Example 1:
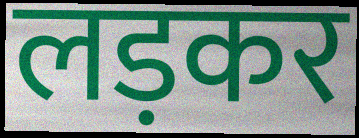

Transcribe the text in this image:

लड़कर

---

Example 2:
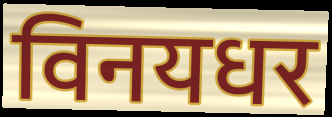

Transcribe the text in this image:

विनयधर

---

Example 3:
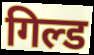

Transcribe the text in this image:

गिल्ड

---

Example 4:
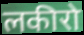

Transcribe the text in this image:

लकीरो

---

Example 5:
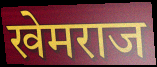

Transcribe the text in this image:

खेमराज